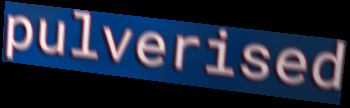
pulverised